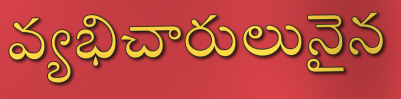
వ్యభిచారులునైన